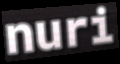
nuri